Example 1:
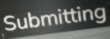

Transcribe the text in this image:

Submitting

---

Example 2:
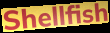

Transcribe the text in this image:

Shellfish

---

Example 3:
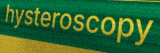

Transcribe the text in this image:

hysteroscopy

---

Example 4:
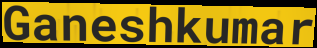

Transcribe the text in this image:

Ganeshkumar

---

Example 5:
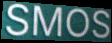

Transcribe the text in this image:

SMOS